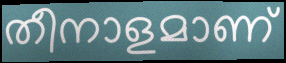
തീനാളമാണ്